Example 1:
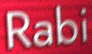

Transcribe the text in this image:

Rabi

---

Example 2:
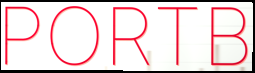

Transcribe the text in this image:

PORTB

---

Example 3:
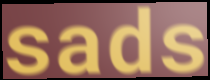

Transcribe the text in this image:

sads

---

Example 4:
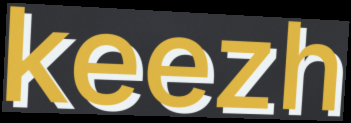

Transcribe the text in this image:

keezh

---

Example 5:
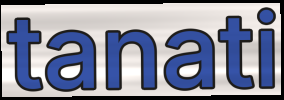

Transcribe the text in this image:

tanati